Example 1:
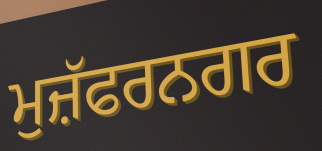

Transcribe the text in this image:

ਮੁਜ਼ੱਫਰਨਗਰ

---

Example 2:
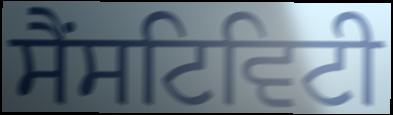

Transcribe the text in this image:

ਸੈਂਸਟਿਵਿਟੀ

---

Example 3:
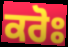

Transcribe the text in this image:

ਕਰੋਃ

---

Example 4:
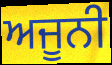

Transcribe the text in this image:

ਅਜੂਨੀ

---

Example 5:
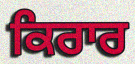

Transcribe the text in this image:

ਕਿਰਾਰ